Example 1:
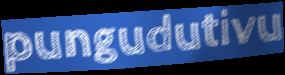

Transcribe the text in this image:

pungudutivu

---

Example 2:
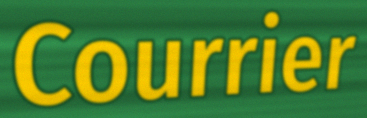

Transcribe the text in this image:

Courrier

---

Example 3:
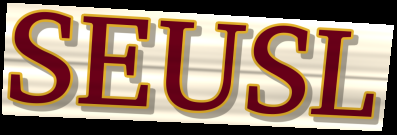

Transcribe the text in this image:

SEUSL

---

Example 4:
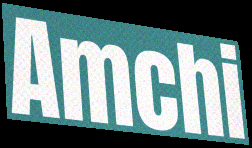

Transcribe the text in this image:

Amchi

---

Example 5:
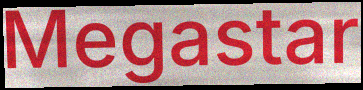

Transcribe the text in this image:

Megastar